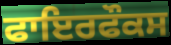
ਫਾਇਰਫੌਕਸ